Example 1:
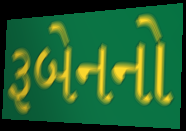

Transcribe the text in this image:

રૂબેનનો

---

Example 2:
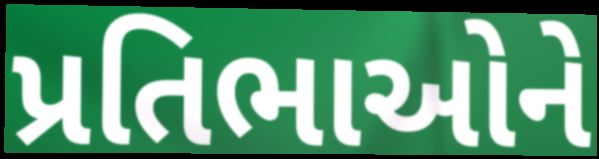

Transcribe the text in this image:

પ્રતિભાઓને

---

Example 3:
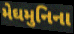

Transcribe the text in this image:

મેઘમુનિના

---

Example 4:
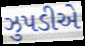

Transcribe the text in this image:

ઝુપડીએ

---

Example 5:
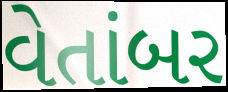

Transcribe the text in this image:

વેતાંબર